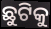
ଛୁଟିକୁ